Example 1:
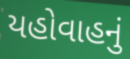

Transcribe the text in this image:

યહોવાહનું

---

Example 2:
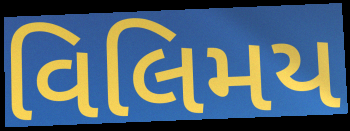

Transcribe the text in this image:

વિલિમય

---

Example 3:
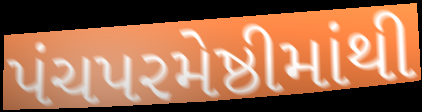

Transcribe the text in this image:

પંચપરમેષ્ઠીમાંથી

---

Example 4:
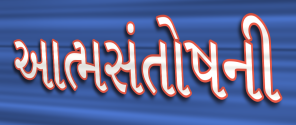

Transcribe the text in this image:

આત્મસંતોષની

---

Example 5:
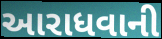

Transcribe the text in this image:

આરાધવાની